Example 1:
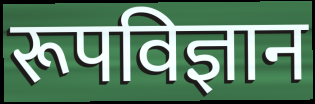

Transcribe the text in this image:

रूपविज्ञान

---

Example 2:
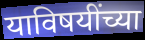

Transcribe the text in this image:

याविषयींच्या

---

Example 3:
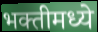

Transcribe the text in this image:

भक्तीमध्ये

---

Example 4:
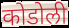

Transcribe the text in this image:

कोडोली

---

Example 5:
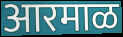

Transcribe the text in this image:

आरमाळ